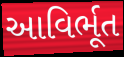
આવિર્ભૂત